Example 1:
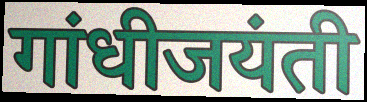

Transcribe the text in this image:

गांधीजयंती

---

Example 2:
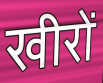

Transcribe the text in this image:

खीरों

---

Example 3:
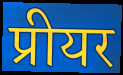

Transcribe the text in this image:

प्रीयर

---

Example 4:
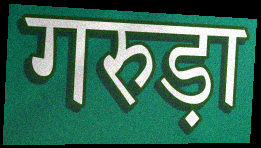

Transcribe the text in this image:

गरुड़ा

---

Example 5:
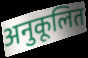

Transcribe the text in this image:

अनुकूलित